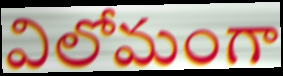
విలోమంగా